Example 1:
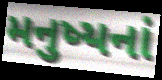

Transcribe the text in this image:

મનુષ્યનાં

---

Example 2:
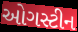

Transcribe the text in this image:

ઓગસ્ટીન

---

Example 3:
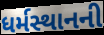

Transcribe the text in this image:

ધર્મસ્થાનની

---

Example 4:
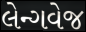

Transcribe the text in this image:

લેન્ગવેજ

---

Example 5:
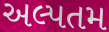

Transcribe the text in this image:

અલ્પતમ